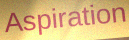
Aspiration